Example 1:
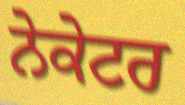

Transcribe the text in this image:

ਨੇਕੇਟਰ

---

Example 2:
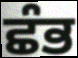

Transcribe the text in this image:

ਛੰਭ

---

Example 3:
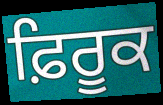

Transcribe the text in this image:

ਫ਼ਿਰੂਕ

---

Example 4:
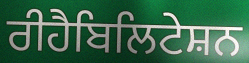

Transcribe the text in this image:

ਰੀਹੈਬਿਲਿਟੇਸ਼ਨ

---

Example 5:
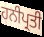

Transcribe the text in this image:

ਹਨੀਪ੍ਰਤੀ